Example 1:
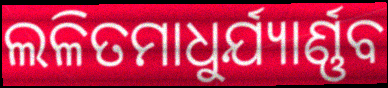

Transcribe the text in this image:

ଲଳିତମାଧୁର୍ଯ୍ୟାର୍ଣ୍ଣବ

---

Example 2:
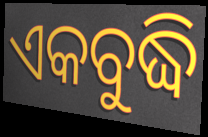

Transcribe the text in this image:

ଏକବୁଦ୍ଧି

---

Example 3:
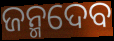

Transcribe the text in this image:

ଜନ୍ମଦେବ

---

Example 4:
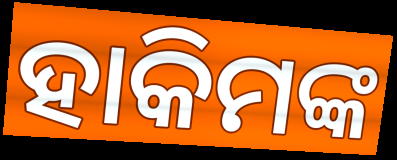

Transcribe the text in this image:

ହାକିମଙ୍କ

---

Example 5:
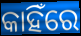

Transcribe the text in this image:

କାହିଁରେ